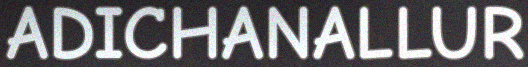
ADICHANALLUR